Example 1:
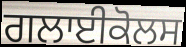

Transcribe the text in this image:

ਗਲਾਈਕੋਲਸ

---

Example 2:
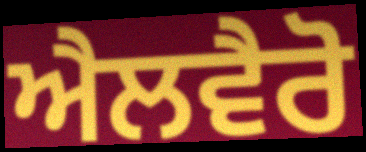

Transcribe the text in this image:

ਐਲਵੈਰੋ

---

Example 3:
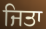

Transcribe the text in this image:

ਜਿਤਾ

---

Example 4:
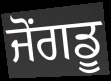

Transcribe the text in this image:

ਜੋਂਗਡੂ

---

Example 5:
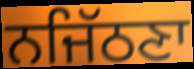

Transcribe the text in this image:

ਨਜਿੱਠਣਾ